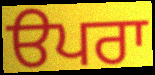
ੳਪਰਾ